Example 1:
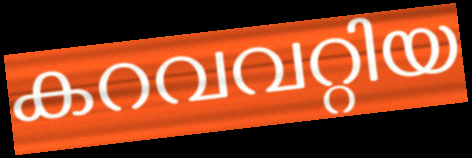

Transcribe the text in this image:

കറവവറ്റിയ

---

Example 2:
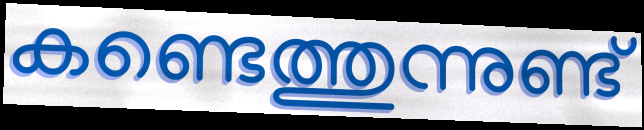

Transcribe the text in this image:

കണ്ടെത്തുന്നുണ്ട്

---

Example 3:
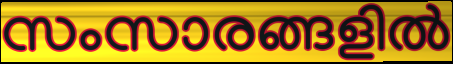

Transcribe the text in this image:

സംസാരങ്ങളിൽ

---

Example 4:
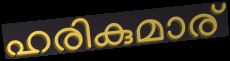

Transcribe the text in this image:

ഹരികുമാര്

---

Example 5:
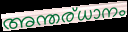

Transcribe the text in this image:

അന്തര്ധാനം